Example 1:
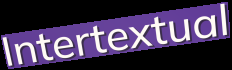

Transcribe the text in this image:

Intertextual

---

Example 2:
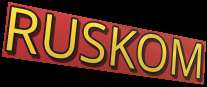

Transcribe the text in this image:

RUSKOM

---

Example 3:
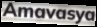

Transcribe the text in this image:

Amavasya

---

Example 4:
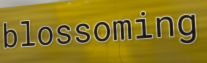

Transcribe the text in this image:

blossoming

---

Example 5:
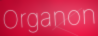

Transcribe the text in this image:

Organon